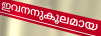
ഇവനനുകൂലമായ